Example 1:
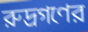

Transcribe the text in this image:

রুদ্রগণের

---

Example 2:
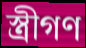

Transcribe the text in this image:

স্ত্রীগণ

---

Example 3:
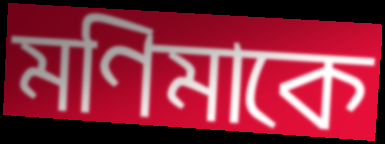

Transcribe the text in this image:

মণিমাকে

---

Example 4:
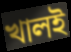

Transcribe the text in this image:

খালই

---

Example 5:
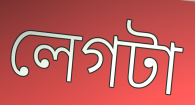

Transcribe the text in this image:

লেগটা